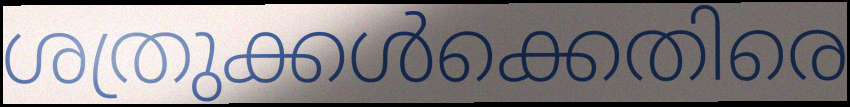
ശത്രുക്കൾക്കെതിരെ